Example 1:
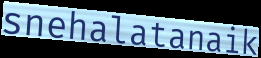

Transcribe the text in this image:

snehalatanaik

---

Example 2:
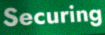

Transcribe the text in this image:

Securing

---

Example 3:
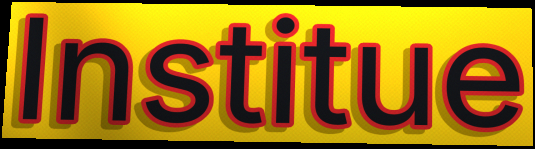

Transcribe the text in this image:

Institue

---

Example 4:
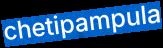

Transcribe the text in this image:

chetipampula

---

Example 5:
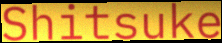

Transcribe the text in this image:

Shitsuke